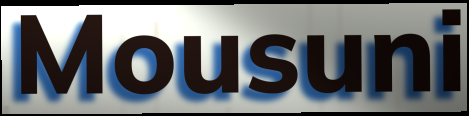
Mousuni